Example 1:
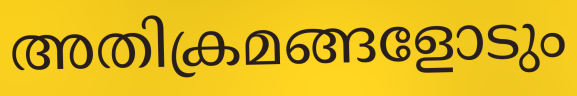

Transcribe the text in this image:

അതിക്രമങ്ങളോടും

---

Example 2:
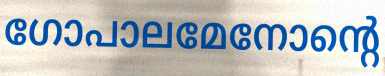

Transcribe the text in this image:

ഗോപാലമേനോന്റെ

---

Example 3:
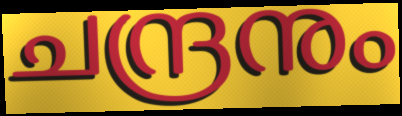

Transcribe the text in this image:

ചന്ദ്രനും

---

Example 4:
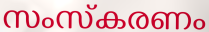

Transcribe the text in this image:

സംസ്‌കരണം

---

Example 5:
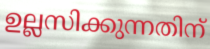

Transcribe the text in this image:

ഉല്ലസിക്കുന്നതിന്